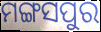
ମଙ୍ଗସପୁର